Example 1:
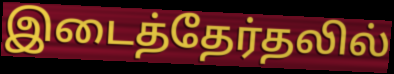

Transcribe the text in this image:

இடைத்தேர்தலில்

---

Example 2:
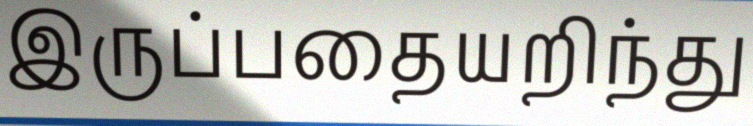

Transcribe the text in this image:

இருப்பதையறிந்து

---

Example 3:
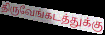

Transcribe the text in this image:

திருவேங்கடத்துக்கு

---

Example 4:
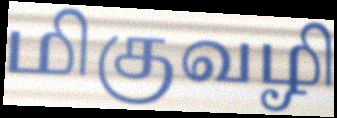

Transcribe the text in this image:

மிகுவழி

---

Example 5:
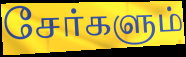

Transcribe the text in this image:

சேர்களும்